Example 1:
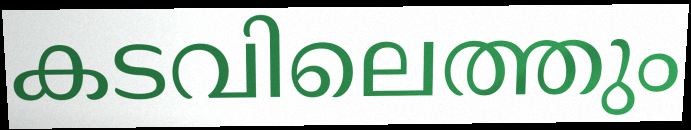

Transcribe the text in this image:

കടവിലെത്തും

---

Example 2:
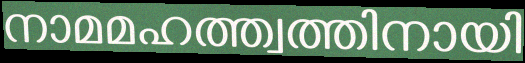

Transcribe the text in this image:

നാമമഹത്ത്വത്തിനായി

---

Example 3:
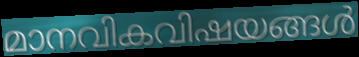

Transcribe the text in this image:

മാനവികവിഷയങ്ങൾ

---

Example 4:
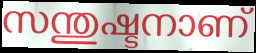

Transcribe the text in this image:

സന്തുഷ്ടനാണ്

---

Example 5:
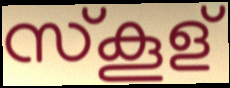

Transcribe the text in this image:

സ്കൂള്